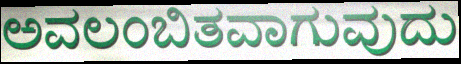
ಅವಲಂಬಿತವಾಗುವುದು